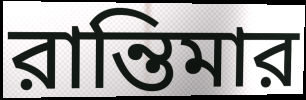
রান্তিমার